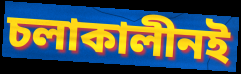
চলাকালীনই